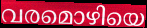
വരമൊഴിയെ